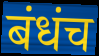
बंधंच